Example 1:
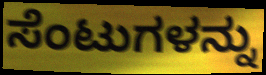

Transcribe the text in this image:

ಸೆಂಟುಗಳನ್ನು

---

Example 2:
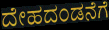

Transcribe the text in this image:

ದೇಹದಂಡನೆಗೆ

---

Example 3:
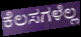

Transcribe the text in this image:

ಕೆಲಸಗಳೆಲ್ಲ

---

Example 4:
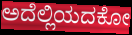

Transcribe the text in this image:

ಅದೆಲ್ಲಿಯದಕೋ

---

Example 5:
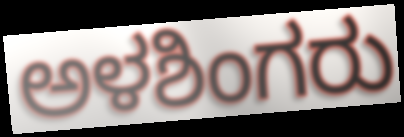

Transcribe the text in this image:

ಅಳಶಿಂಗರು